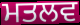
ਮਤਲਵ